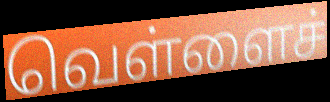
வெள்ளைச்